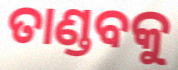
ତାଣ୍ଡବକୁ